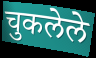
चुकलेले